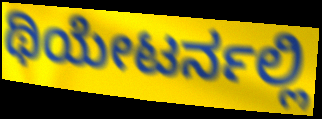
ಥಿಯೇಟರ್ನಲ್ಲಿ